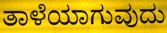
ತಾಳೆಯಾಗುವುದು